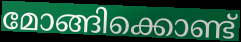
മോങ്ങിക്കൊണ്ട്